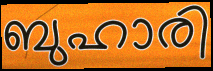
ബുഹാരി